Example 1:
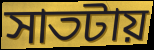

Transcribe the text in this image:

সাতটায়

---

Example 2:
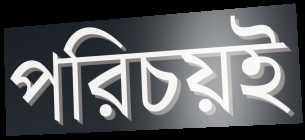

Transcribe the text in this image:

পরিচয়ই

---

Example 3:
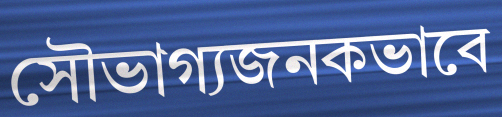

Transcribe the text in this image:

সৌভাগ্যজনকভাবে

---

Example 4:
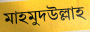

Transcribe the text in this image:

মাহমুদউল্লাহ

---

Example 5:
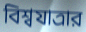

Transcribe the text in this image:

বিশ্বযাত্রার